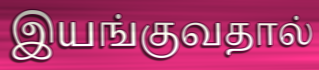
இயங்குவதால்